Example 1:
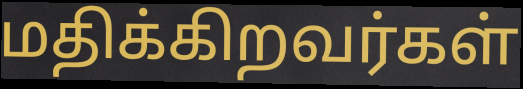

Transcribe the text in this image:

மதிக்கிறவர்கள்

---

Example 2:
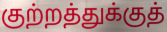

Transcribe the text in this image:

குற்றத்துக்குத்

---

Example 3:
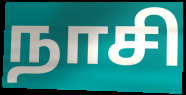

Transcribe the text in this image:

நாசி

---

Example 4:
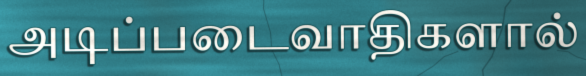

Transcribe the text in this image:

அடிப்படைவாதிகளால்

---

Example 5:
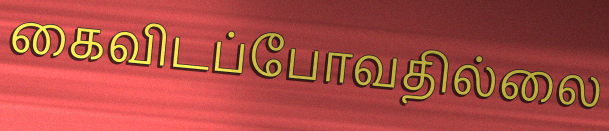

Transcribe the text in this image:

கைவிடப்போவதில்லை